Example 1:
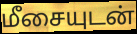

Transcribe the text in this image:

மீசையுடன்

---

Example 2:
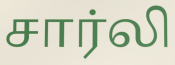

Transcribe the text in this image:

சார்லி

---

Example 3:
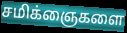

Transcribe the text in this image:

சமிக்ஞைகளை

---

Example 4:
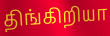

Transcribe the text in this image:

திங்கிறியா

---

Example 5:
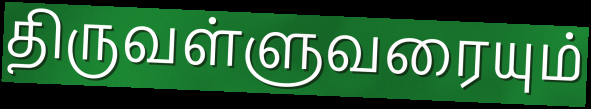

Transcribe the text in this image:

திருவள்ளுவரையும்